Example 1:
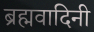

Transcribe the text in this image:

ब्रह्मवादिनी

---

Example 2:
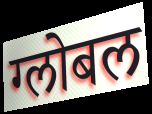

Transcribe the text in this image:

ग्लोबल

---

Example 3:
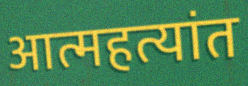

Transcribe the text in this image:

आत्महत्यांत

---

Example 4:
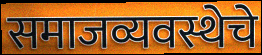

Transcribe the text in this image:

समाजव्यवस्थेचे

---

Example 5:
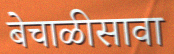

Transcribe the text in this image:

बेचाळीसावा